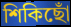
শিকিছোঁ